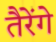
तैरेंगे